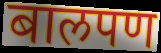
बालपण